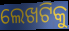
ଲେଖଟିକୁ